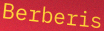
Berberis